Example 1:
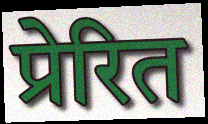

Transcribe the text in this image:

प्रेरित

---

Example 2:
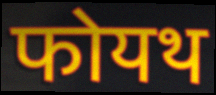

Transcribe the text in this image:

फोयथ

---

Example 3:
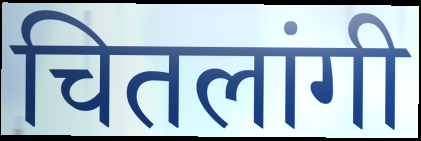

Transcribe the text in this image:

चितलांगी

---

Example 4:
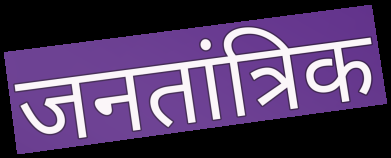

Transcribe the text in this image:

जनतांत्रिक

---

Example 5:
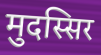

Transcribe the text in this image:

मुदस्सिर